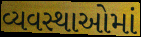
વ્યવસ્થાઓમાં